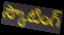
స్కౌటింగ్